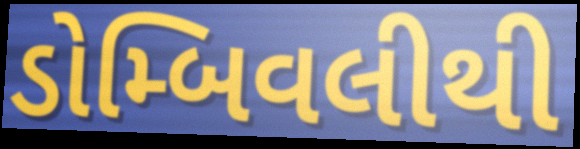
ડોમ્બિવલીથી